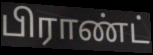
பிராண்ட்